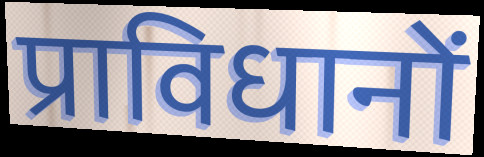
प्राविधानों